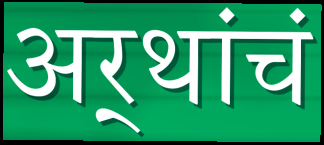
अर्थांचं